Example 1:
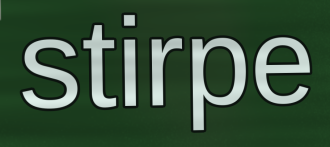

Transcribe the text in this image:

stirpe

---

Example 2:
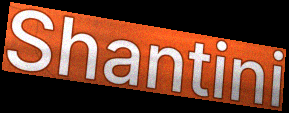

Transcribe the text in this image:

Shantini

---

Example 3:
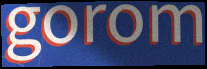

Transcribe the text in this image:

gorom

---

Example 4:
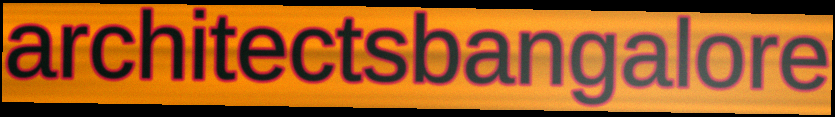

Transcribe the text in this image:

architectsbangalore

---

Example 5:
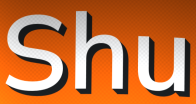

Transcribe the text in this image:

Shu